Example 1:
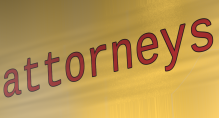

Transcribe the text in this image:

attorneys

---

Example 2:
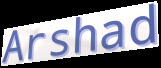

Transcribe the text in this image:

Arshad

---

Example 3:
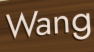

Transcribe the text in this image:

Wang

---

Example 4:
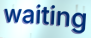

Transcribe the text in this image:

waiting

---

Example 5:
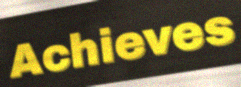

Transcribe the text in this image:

Achieves